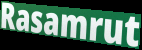
Rasamrut